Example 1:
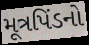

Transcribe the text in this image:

મૂત્રપિંડનો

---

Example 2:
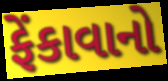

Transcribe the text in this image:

ફેંકાવાનો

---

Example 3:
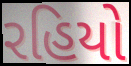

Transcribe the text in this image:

રહિયો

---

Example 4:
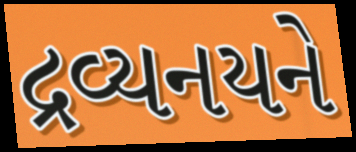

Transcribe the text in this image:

દ્રવ્યનયને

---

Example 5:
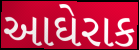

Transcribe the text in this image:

આઘેરાક